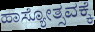
ಹಾಸ್ಯೋತ್ಸವಕ್ಕೆ